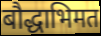
बौद्धाभिमत